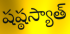
షష్ఠస్యాత్